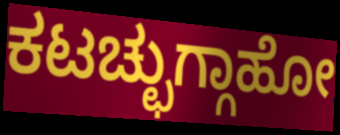
ಕಟಚ್ಛುಗ್ಗಾಹೋ